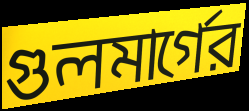
গুলমার্গের